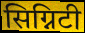
सिग्निटी